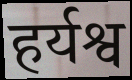
हर्यश्व